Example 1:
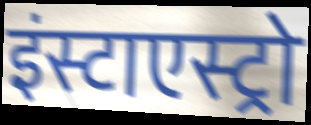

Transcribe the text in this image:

इंस्टाएस्ट्रो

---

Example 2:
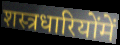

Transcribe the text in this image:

शस्त्रधारियोंमें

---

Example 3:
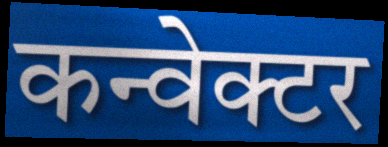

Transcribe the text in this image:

कन्वेक्टर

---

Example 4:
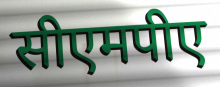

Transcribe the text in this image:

सीएमपीए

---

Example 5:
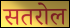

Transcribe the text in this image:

सतरोल